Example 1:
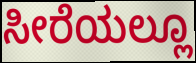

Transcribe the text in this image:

ಸೀರೆಯಲ್ಲೂ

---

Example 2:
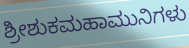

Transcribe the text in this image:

ಶ್ರೀಶುಕಮಹಾಮುನಿಗಳು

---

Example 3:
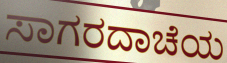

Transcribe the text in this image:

ಸಾಗರದಾಚೆಯ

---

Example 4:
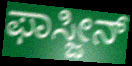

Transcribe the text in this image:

ಫಾಸ್ಜೀನ್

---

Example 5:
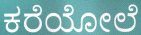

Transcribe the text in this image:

ಕರೆಯೋಲೆ